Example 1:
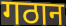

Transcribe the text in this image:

गठान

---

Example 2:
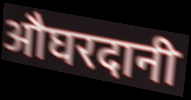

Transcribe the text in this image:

औघरदानी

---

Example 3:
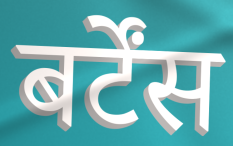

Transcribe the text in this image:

बर्टेंस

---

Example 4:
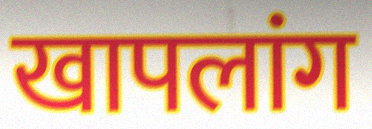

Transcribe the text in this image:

खापलांग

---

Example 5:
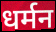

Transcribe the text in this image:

धर्मन